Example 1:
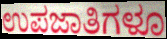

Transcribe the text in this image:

ಉಪಜಾತಿಗಳೂ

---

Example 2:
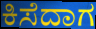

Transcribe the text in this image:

ಕಿಸೆದಾಗ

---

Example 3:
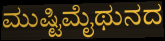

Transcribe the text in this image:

ಮುಷ್ಟಿಮೈಥುನದ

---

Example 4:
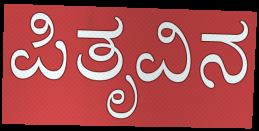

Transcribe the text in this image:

ಪಿತೃವಿನ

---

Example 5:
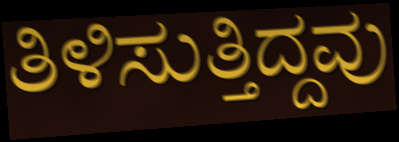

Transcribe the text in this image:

ತಿಳಿಸುತ್ತಿದ್ದವು